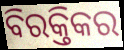
ବିରକ୍ତିକର